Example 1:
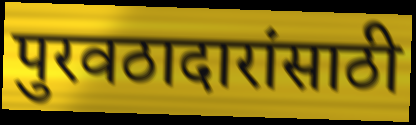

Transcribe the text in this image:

पुरवठादारांसाठी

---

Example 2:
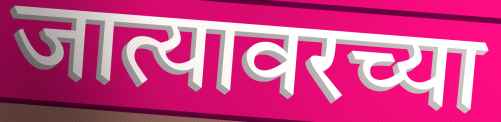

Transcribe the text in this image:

जात्यावरच्या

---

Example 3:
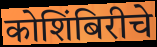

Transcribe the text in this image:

कोशिंबिरीचे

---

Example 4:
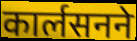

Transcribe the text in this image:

कार्लसनने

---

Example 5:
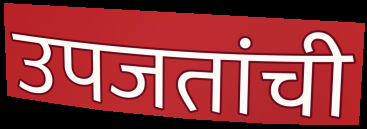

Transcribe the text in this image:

उपजतांची